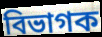
বিভাগক